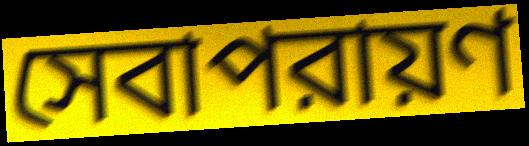
সেবাপরায়ণ